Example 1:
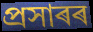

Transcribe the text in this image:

প্ৰসাৰৰ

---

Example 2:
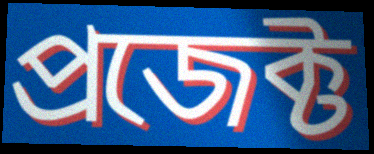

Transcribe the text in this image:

প্ৰজেক্ট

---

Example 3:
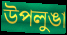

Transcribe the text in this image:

উপলুঙা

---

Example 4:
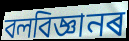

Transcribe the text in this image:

বলবিজ্ঞানৰ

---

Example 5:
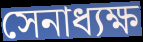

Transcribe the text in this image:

সেনাধ্যক্ষ